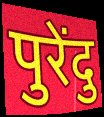
पुरेंदु